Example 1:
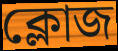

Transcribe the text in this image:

ক্লোজ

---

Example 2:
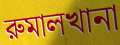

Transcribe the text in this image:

রুমালখানা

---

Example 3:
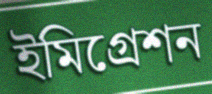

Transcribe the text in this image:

ইমিগ্রেশন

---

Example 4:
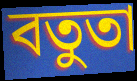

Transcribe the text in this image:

বতুতা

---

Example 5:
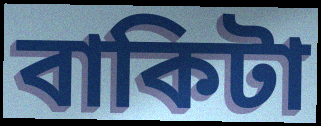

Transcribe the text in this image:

বাকিটা